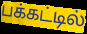
பக்கட்டில்